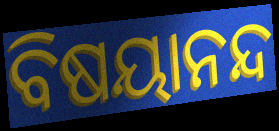
ବିଷୟାନନ୍ଦ